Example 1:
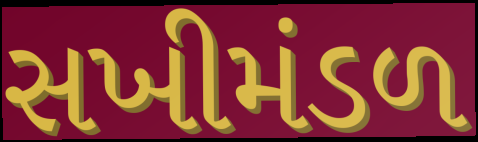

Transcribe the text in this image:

સખીમંડળ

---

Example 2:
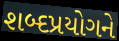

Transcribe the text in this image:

શબ્દપ્રયોગને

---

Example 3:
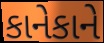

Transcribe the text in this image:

કાનેકાને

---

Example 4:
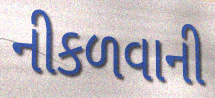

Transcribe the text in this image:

નીકળવાની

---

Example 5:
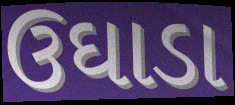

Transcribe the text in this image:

ઉઘાડા